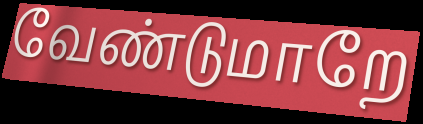
வேண்டுமாறே